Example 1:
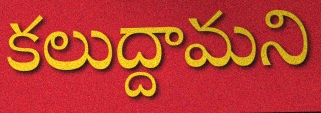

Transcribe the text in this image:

కలుద్దామని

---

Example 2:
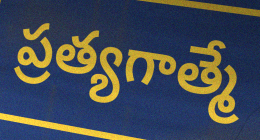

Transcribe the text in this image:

ప్రత్యగాత్మే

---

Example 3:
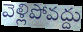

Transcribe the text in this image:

వెళ్లిపోవద్దు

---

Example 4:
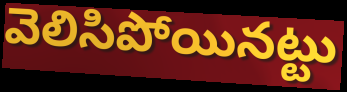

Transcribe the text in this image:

వెలిసిపోయినట్టు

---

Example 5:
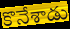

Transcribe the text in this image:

కొనేశాడు